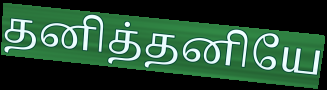
தனித்தனியே